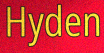
Hyden